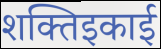
शक्तिइकाई